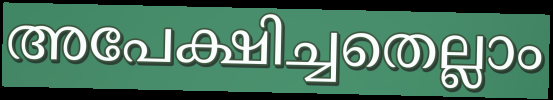
അപേക്ഷിച്ചതെല്ലാം